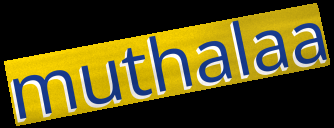
muthalaa